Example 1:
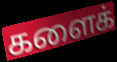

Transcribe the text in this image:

களைக்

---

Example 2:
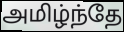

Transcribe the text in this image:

அமிழ்ந்தே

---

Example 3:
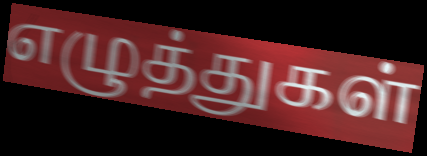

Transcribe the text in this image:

எழுத்துகள்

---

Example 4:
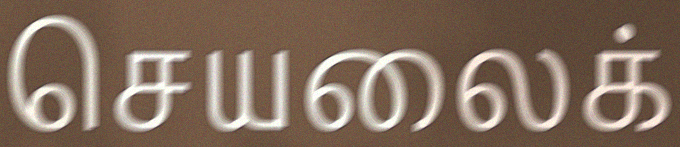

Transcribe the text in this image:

செயலைக்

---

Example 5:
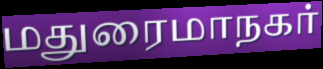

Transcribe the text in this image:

மதுரைமாநகர்